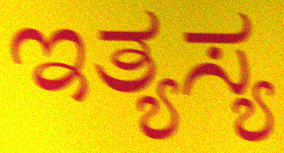
ಇತ್ಯಸ್ಯ